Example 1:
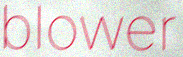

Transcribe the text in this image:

blower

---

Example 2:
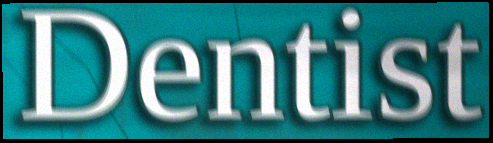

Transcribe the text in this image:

Dentist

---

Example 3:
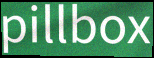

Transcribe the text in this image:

pillbox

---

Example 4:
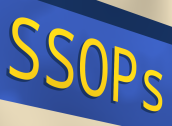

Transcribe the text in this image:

SSOPs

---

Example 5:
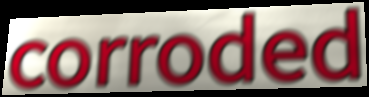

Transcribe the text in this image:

corroded